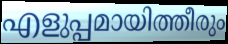
എളുപ്പമായിത്തീരും